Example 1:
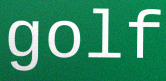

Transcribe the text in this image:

golf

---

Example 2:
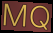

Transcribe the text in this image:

MQ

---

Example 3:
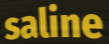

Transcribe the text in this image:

saline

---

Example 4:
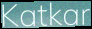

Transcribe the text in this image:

Katkar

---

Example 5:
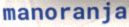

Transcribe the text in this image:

manoranja